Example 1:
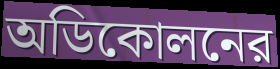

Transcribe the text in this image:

অডিকোলনের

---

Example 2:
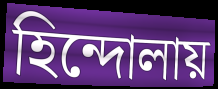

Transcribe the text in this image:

হিন্দোলায়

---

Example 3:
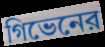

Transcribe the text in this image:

গিভেনের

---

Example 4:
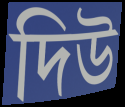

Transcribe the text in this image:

দিউ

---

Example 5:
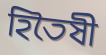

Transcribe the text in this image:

হিতৈষী